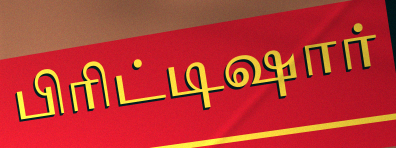
பிரிட்டிஷார்